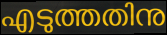
എടുത്തതിനു